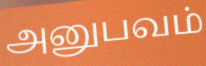
அனுபவம்